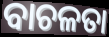
ବାଚଳତା